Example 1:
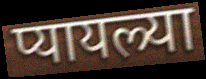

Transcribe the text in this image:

प्यायल्या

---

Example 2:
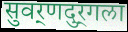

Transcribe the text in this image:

सुवर्णदुर्गला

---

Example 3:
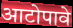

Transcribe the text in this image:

आटोपावे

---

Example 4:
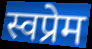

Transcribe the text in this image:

स्वप्रेम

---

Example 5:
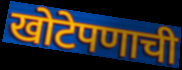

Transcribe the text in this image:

खोटेपणाची